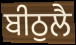
ਬੀਠੁਲੈ